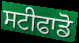
ਸਟੀਫਾਡੋ